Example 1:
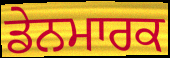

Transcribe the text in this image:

ਡੇਨਮਾਰਕ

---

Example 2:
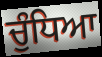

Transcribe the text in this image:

ਚੁੰਧਿਆ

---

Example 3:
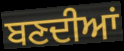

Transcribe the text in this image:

ਬਣਦੀਆਂ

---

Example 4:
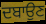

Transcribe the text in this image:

ਦਬਾਉਣ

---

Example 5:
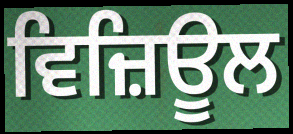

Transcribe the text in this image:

ਵਿਜ਼ਿਊਲ